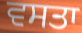
ਵਸਤਾ